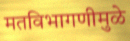
मतविभागणीमुळे